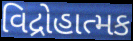
વિદ્રોહાત્મક